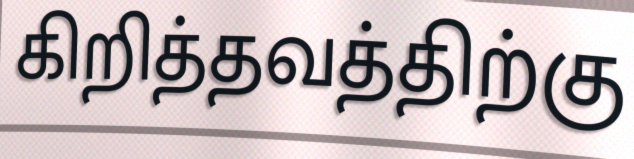
கிறித்தவத்திற்கு